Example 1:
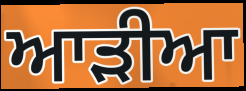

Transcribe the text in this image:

ਆੜੀਆ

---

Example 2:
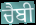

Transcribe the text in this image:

ਚੈਬੀ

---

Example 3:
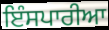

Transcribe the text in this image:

ਇੰਸਪਾਰੀਆ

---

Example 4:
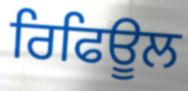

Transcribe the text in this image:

ਰਿਫਿਊਲ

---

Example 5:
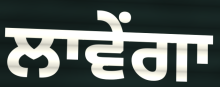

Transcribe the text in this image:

ਲਾਵੇਂਗਾ